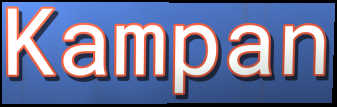
Kampan